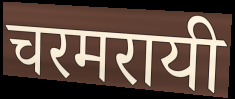
चरमरायी